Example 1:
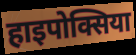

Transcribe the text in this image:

हाइपोक्सिया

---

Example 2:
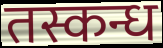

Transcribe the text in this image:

तस्कन्ध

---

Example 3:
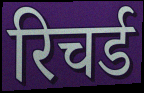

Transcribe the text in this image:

रिचर्ड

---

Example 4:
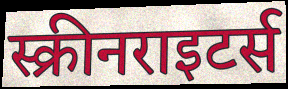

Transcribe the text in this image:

स्क्रीनराइटर्स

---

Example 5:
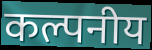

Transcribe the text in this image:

कल्पनीय